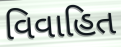
વિવાહિત